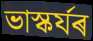
ভাস্কৰ্যৰ